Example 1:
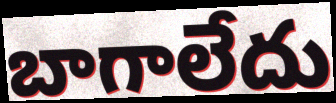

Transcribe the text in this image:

బాగాలేదు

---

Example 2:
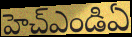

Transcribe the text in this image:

హెచ్ఎండిఏ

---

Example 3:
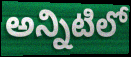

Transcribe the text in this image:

అన్నిటిలో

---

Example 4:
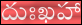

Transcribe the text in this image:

దుఃఖహా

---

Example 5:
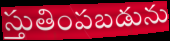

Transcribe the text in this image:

స్తుతింపబడును